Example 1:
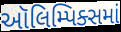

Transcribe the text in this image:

ઑલિમ્પિક્સમાં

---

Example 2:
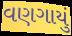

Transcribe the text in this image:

વણગાયું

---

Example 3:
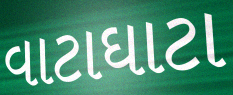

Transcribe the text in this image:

વાટાઘાટા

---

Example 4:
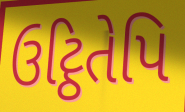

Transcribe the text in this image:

ઉટ્ઠિતેપિ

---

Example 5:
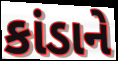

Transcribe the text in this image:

કાંડાને